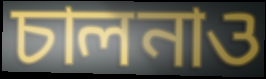
চালনাও